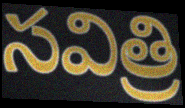
సవిత్రి